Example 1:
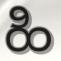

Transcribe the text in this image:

ಹಿ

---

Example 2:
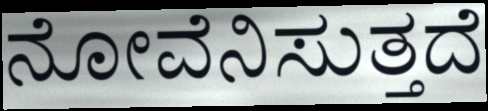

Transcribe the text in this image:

ನೋವೆನಿಸುತ್ತದೆ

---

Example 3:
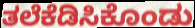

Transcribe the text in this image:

ತಲೆಕೆಡಿಸಿಕೊಂಡು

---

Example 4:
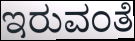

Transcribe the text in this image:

ಇರುವಂತೆ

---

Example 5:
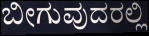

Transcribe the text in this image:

ಬೀಗುವುದರಲ್ಲಿ